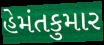
હેમંતકુમાર